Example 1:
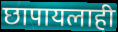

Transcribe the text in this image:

छापायलाही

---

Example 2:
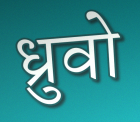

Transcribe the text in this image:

ध्रुवो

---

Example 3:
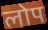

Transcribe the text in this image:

लोप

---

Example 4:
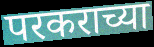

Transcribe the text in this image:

परकराच्या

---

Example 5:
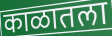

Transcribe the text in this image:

काळातला